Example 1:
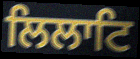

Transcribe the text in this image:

ਲਿਲਾਟਿ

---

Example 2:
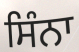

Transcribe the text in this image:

ਸਿੰਨਾ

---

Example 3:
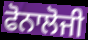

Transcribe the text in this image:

ਫੋਨਾਲੋਜੀ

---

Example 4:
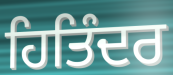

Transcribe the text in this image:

ਹਿਤਿੰਦਰ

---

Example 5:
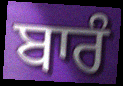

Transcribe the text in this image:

ਬਾਰੰ